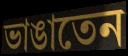
ভাঙাতেন